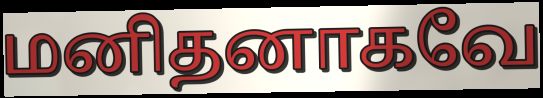
மனிதனாகவே